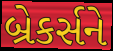
બ્રેકર્સને